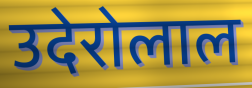
उदेरोलाल